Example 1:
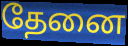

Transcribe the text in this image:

தேனை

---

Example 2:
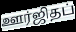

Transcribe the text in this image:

ஊர்ஜிதப்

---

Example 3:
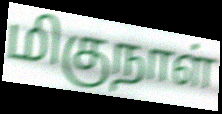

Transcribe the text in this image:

மிகுநாள்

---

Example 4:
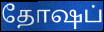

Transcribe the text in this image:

தோஷப்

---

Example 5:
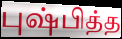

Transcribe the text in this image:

புஷ்பித்த